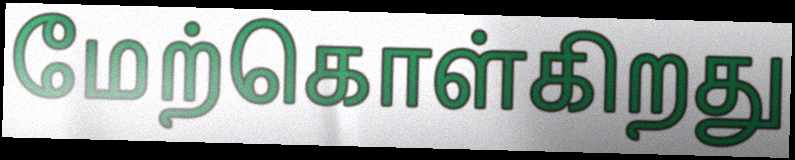
மேற்கொள்கிறது